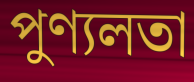
পুণ্যলতা